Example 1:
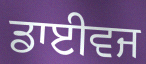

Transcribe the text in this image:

ਡਾਈਵਜ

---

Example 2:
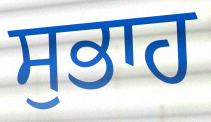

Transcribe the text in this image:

ਸੁਭਾਹ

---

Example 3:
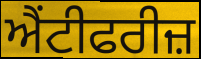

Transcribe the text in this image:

ਐਂਟੀਫਰੀਜ਼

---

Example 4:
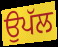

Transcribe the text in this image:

ਉਪੱਲ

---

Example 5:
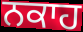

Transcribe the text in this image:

ਨਕਾਹ